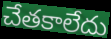
చేతకాలేదు